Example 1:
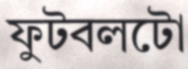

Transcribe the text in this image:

ফুটবলটো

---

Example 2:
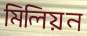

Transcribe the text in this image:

মিলিয়ন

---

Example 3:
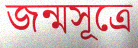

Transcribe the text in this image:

জন্মসূত্ৰে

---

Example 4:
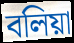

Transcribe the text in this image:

বলিয়া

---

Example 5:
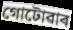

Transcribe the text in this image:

গোটোৱাৰ